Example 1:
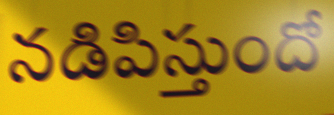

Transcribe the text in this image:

నడిపిస్తుందో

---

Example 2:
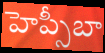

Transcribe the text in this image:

హెప్సీబా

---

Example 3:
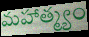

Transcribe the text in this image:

మహాత్మ్యం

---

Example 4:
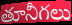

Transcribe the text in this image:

తూనీగలు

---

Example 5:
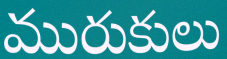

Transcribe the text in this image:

మురుకులు